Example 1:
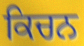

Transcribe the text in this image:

ਕਿਚਨ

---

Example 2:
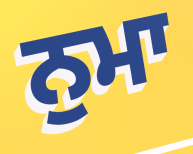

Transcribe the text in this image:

ਨੁਮਾ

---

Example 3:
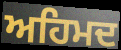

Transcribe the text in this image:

ਅਹਿਮਦ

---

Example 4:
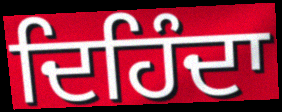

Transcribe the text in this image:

ਦਿਹਿੰਦਾ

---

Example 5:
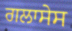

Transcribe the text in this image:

ਗਲਾਸੇਸ